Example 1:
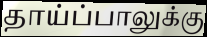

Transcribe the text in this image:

தாய்ப்பாலுக்கு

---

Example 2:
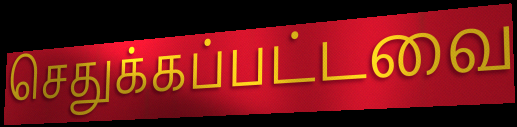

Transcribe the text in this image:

செதுக்கப்பட்டவை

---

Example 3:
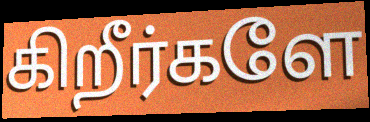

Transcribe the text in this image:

கிறீர்களே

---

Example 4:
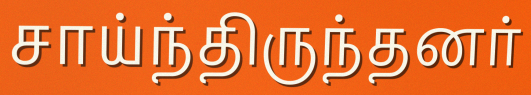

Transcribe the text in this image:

சாய்ந்திருந்தனர்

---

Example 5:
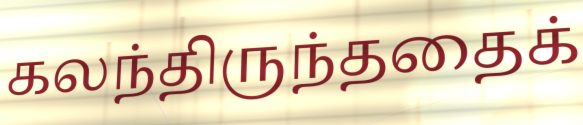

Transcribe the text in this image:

கலந்திருந்ததைக்